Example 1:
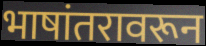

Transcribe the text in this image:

भाषांतरावरून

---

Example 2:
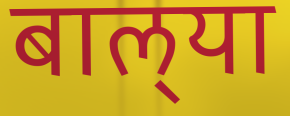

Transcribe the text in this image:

बाल्या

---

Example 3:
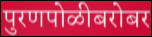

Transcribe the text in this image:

पुरणपोळीबरोबर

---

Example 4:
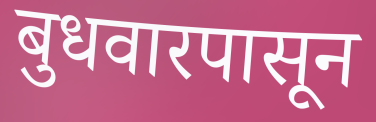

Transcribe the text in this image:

बुधवारपासून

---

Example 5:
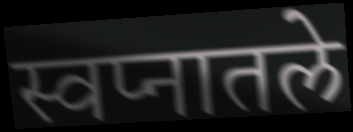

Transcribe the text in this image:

स्वप्नातले